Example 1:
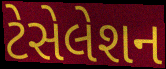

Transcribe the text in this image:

ટેસેલેશન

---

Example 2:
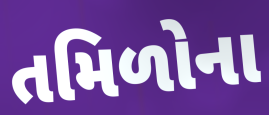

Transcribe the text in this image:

તમિળોના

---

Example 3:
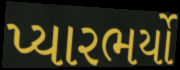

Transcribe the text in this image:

પ્યારભર્યો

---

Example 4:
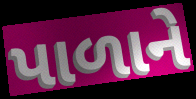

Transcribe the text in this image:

પાળાને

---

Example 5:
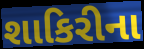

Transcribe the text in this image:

શાકિરીના